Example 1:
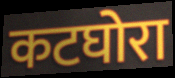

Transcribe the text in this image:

कटघोरा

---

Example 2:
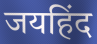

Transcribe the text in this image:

जयहिंद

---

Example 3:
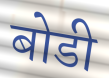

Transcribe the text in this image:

बोडी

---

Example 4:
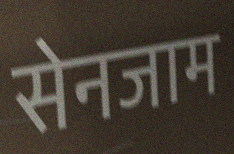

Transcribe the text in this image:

सेनजाम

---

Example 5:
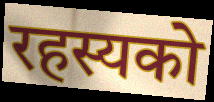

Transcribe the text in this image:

रहस्यको